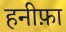
हनीफ़ा